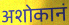
अशोकानं